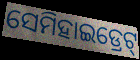
ସେମିହାଇଡ୍ରେଟ୍